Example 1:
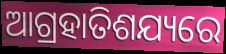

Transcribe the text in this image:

ଆଗ୍ରହାତିଶଯ୍ୟରେ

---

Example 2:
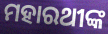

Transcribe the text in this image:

ମହାରଥୀଙ୍କ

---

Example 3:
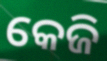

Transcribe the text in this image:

କେଜି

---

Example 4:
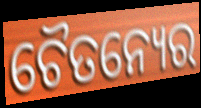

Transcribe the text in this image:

ଚୈତନ୍ୟେର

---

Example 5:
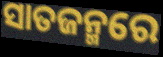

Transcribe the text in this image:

ସାତଜନ୍ମରେ